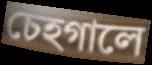
চেহগালে